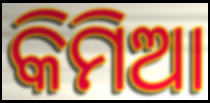
କିମିଆ